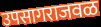
उपसागराजवळ